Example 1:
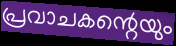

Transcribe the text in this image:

പ്രവാചകന്റെയും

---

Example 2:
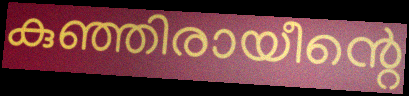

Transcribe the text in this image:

കുഞ്ഞിരായീന്റെ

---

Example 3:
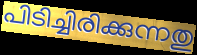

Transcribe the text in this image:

പിടിച്ചിരിക്കുന്നതു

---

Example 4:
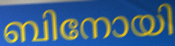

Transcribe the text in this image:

ബിനോയി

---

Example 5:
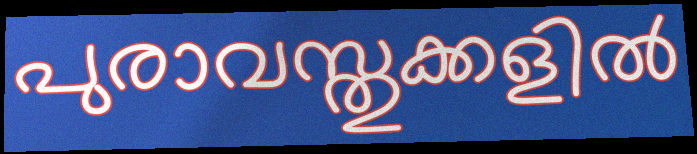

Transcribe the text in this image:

പുരാവസ്തുക്കളിൽ